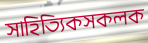
সাহিত্যিকসকলক